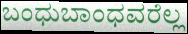
ಬಂಧುಬಾಂಧವರೆಲ್ಲ